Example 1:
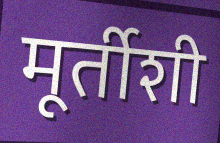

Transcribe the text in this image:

मूर्तीशी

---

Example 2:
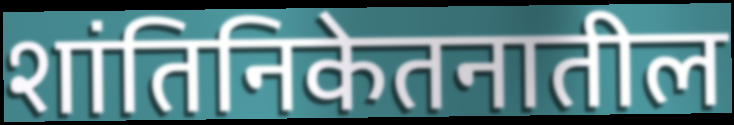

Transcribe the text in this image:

शांतिनिकेतनातील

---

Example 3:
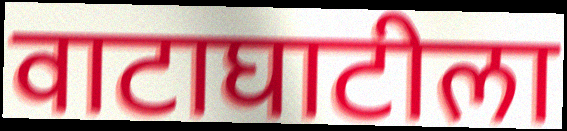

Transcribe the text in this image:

वाटाघाटीला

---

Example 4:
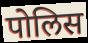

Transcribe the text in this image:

पोलिस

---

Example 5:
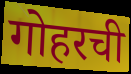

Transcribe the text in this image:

गोहरची